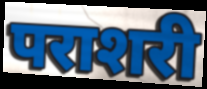
पराशरी